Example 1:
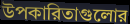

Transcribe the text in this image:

উপকারিতাগুলোর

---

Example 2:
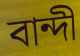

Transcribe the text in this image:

বান্দী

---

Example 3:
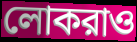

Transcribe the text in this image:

লোকরাও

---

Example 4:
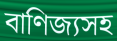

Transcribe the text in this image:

বাণিজ্যসহ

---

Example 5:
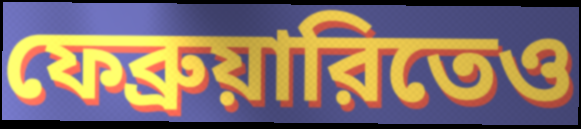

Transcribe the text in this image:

ফেব্রুয়ারিতেও